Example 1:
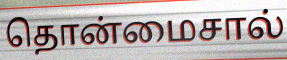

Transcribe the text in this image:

தொன்மைசால்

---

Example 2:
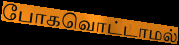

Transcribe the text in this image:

போகவொட்டாமல்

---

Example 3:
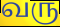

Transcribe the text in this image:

வரு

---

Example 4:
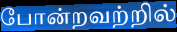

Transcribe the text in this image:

போன்றவற்றில்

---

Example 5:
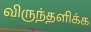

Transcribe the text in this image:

விருந்தளிக்க